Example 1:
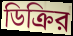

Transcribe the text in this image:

ডিক্রির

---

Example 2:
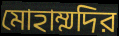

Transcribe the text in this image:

মোহাম্মদির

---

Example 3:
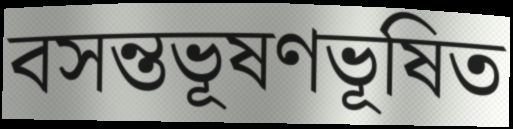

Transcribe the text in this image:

বসন্তভূষণভূষিত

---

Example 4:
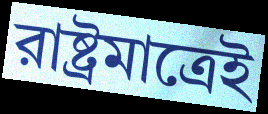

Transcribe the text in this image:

রাষ্ট্রমাত্রেই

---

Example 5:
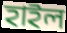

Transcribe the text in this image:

হাইল